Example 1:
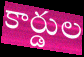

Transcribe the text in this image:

కార్డుల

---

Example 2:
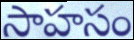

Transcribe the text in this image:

సాహసం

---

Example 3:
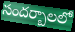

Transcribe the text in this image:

సందర్బాలలో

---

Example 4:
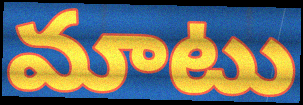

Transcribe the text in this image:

మాటు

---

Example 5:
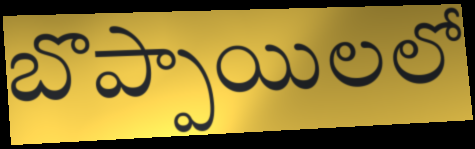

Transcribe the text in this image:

బొప్పాయిలలో